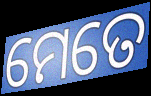
ମେତେ